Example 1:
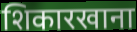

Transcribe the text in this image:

शिकारखाना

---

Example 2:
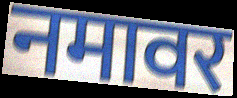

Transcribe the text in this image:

नमावर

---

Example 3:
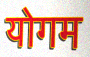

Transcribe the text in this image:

योगम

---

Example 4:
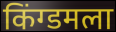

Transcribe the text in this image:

किंग्डमला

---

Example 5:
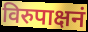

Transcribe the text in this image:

विरुपाक्षनं